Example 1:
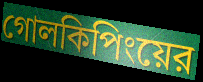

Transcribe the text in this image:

গোলকিপিংয়ের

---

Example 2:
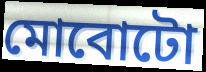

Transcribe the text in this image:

মোবোটো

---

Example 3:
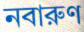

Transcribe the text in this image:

নবারুণ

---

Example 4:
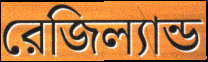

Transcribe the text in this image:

রেজিল্যান্ড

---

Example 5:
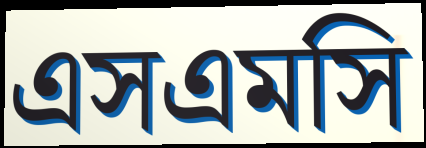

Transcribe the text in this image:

এসএমসি